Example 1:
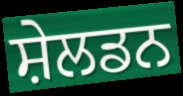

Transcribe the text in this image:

ਸ਼ੇਲਡਨ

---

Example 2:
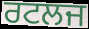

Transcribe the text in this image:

ਰਟਲਜ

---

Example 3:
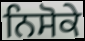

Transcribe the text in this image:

ਨਿਸੋਕੇ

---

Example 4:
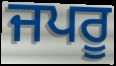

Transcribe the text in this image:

ਜਪਰੂ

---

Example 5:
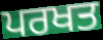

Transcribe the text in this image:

ਪਰਖਤ